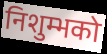
निशुम्भको